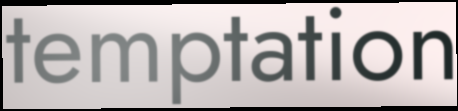
temptation